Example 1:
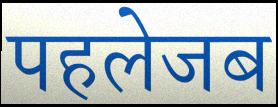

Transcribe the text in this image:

पहलेजब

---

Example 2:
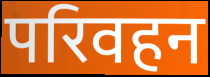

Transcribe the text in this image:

परिवहन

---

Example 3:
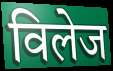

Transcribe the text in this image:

विलेज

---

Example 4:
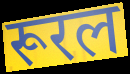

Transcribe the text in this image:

रूरल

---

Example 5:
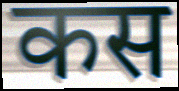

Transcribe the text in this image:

कस